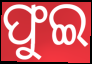
ଫୁଇ